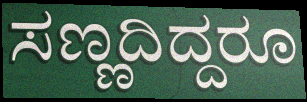
ಸಣ್ಣದಿದ್ದರೂ